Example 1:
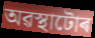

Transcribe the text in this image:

অৱস্থাটোৰ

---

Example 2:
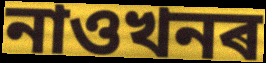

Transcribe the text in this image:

নাওখনৰ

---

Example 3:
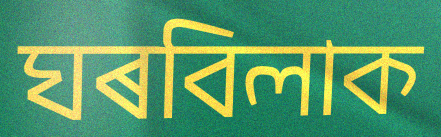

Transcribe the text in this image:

ঘৰবিলাক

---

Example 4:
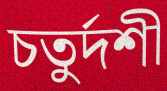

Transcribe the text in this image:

চতুৰ্দশী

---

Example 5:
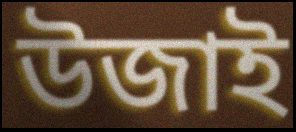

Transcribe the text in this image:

উজাই